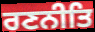
ਰਣਨੀਤਿ